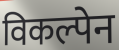
विकल्पेन